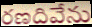
రణదివేను